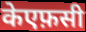
केएफ़सी